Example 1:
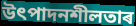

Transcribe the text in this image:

উৎপাদনশীলতাৰ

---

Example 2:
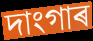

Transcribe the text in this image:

দাংগাৰ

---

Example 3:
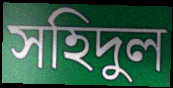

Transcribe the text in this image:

সহিদুল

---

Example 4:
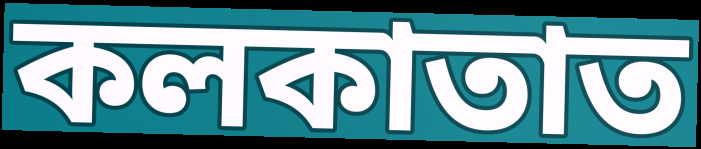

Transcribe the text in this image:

কলকাতাত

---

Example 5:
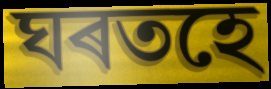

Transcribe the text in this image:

ঘৰতহে